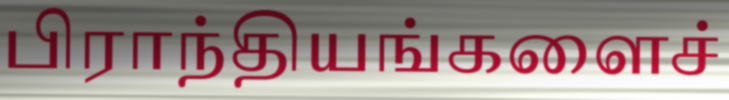
பிராந்தியங்களைச்